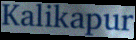
Kalikapur